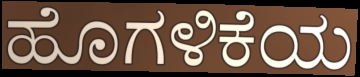
ಹೊಗಳಿಕೆಯ